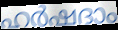
ഹർഷദാം